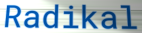
Radikal